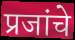
प्रजांचे